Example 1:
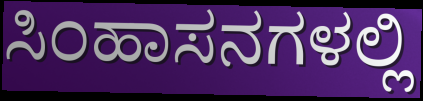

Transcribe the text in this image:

ಸಿಂಹಾಸನಗಳಲ್ಲಿ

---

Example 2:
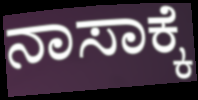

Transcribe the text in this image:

ನಾಸಾಕ್ಕೆ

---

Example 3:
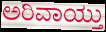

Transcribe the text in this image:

ಅರಿವಾಯ್ತು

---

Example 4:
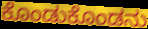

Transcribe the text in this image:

ಕೊಂಡುಕೊಂಡನು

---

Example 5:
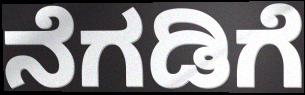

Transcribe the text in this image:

ನೆಗಡಿಗೆ